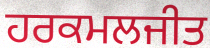
ਹਰਕਮਲਜੀਤ